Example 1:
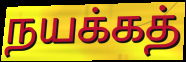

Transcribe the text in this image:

நயக்கத்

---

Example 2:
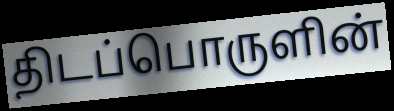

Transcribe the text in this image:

திடப்பொருளின்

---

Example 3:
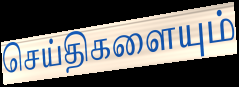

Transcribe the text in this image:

செய்திகளையும்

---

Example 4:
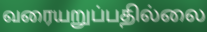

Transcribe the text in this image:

வரையறுப்பதில்லை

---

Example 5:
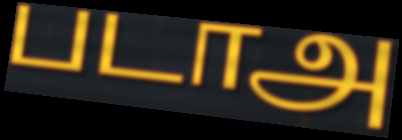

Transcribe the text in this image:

படாஅ